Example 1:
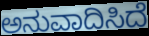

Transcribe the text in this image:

ಅನುವಾದಿಸಿದೆ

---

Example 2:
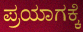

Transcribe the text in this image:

ಪ್ರಯಾಗಕ್ಕೆ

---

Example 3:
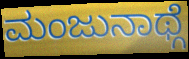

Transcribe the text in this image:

ಮಂಜುನಾಥ್ಗೆ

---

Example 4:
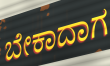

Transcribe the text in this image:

ಬೇಕಾದಾಗ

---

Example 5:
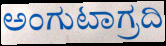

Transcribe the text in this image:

ಅಂಗುಟಾಗ್ರದಿ